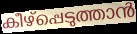
കീഴ്പ്പെടുത്താൻ